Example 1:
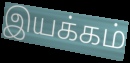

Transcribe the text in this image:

இயக்கம்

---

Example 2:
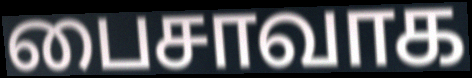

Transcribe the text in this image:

பைசாவாக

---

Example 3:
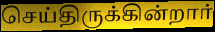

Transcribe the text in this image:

செய்திருக்கின்றார்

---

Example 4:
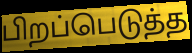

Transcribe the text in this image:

பிறப்பெடுத்த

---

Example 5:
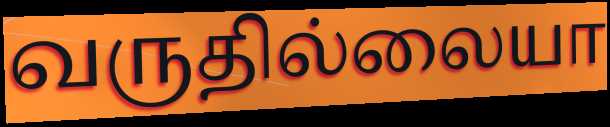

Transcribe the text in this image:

வருதில்லையா